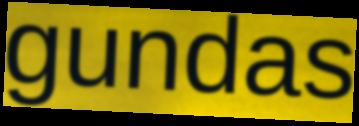
gundas